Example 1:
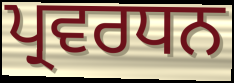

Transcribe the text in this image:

ਪ੍ਰਵਰਧਨ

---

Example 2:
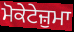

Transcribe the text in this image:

ਮੋਕੇਟੇਜ਼ੁਮਾ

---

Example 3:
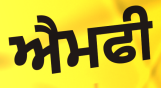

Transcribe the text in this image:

ਐਮਫੀ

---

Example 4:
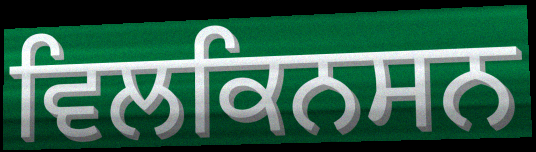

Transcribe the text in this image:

ਵਿਲਕਿਨਸਨ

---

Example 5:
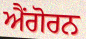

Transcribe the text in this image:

ਐਂਗੋਰਨ